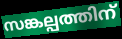
സങ്കല്പത്തിന്